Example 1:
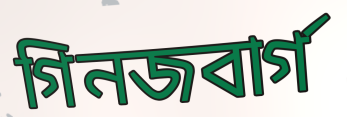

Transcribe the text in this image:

গিনজবার্গ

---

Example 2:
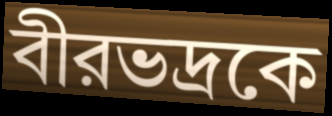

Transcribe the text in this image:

বীরভদ্রকে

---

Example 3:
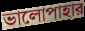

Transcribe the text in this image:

ভালোপাহার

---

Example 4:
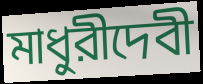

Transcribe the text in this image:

মাধুরীদেবী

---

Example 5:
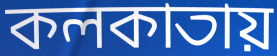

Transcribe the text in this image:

কলকাতায়